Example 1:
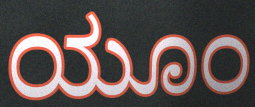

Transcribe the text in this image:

ಯೂಂ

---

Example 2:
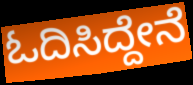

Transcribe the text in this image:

ಓದಿಸಿದ್ದೇನೆ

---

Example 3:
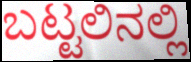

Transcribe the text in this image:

ಬಟ್ಟಲಿನಲ್ಲಿ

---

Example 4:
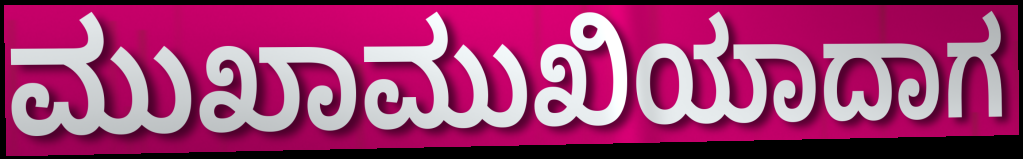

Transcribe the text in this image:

ಮುಖಾಮುಖಿಯಾದಾಗ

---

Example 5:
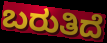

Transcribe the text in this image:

ಬರುತಿದೆ